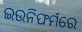
ଇଉନିଫର୍ମରେ